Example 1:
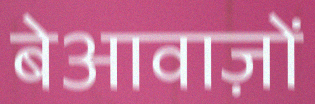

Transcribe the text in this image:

बेआवाज़ों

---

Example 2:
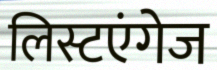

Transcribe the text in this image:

लिस्टएंगेज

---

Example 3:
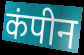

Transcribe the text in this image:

कंपीन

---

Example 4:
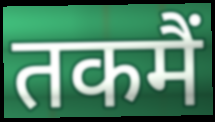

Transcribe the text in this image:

तकमैं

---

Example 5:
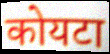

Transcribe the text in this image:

कोयटा